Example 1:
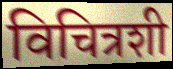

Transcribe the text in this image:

विचित्रशी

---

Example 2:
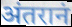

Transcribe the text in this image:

अंतरानं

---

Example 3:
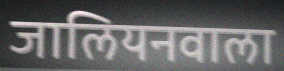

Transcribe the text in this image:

जालियनवाला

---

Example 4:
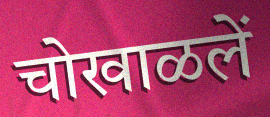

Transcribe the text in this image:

चोखाळलें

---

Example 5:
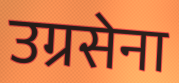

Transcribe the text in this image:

उग्रसेना